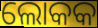
ଲୋକକ